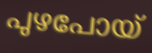
പുഴപോയ്